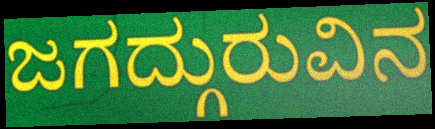
ಜಗದ್ಗುರುವಿನ